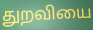
துறவியை